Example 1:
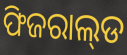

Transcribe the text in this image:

ଫିଜରାଲ୍‌ଡ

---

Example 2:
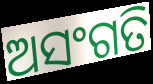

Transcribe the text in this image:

ଅସଂଗତି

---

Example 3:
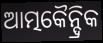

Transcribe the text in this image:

ଆତ୍ମକୈନ୍ଦ୍ରିକ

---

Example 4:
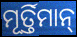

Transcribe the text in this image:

ମୂର୍ତ୍ତିମାନ୍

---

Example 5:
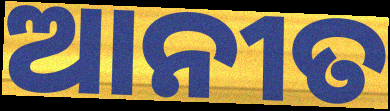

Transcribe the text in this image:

ଆନୀତ